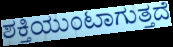
ಶಕ್ತಿಯುಂಟಾಗುತ್ತದೆ